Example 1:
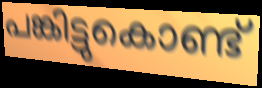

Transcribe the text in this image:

പങ്കിട്ടുകൊണ്ട്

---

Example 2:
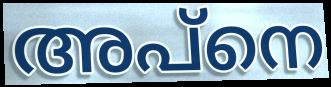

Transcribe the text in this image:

അപ്നെ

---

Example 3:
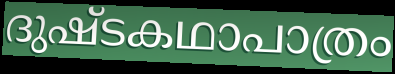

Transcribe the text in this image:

ദുഷ്ടകഥാപാത്രം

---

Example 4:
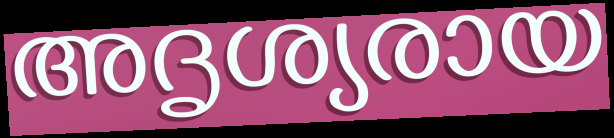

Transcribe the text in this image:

അദൃശ്യരായ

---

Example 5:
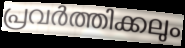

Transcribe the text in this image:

പ്രവർത്തിക്കലും